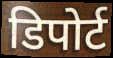
डिपोर्ट